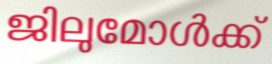
ജിലുമോൾക്ക്